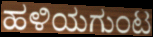
ಹಳಿಯಗುಂಟ